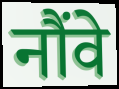
नौंवे